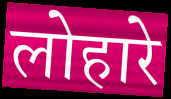
लोहारे